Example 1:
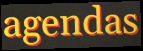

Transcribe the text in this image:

agendas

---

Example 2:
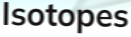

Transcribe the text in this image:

Isotopes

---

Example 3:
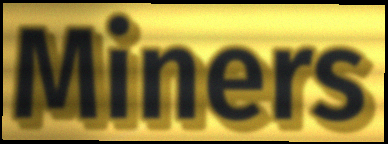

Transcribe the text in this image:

Miners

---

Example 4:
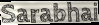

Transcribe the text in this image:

Sarabhai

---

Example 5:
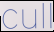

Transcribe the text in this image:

cull